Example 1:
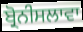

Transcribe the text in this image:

ਬ੍ਰੋਨੀਸਲਾਵਾ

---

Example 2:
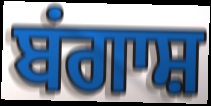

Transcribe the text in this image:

ਬਂਗਾਸ਼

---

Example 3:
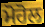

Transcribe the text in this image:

ਮੋਹੋਲ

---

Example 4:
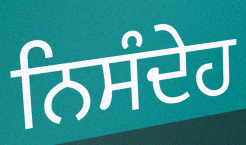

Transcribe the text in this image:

ਨਿਸੰਦੇਹ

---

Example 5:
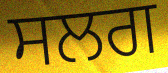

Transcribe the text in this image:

ਸਲਗ